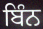
ਬਿੰਨ